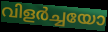
വിളർച്ചയോ